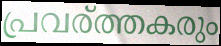
പ്രവര്ത്തകരും